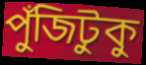
পুঁজিটুকু